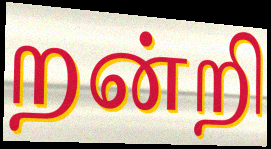
றன்றி